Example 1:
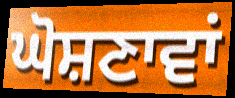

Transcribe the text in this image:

ਘੋਸ਼ਣਾਵਾਂ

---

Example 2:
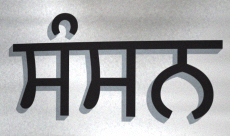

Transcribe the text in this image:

ਸੰਸਨ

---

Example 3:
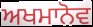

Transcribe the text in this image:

ਅਖਮਾਨੋਵ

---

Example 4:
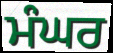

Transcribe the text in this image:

ਮੰਘਰ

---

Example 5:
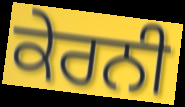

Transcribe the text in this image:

ਕੇਰਨੀ